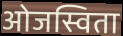
ओजस्विता